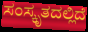
ಸಂಸ್ಕೃತದಲ್ಲಿದೆ